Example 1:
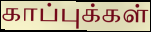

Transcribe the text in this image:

காப்புக்கள்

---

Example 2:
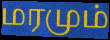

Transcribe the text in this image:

மரமும்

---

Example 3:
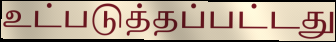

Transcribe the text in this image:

உட்படுத்தப்பட்டது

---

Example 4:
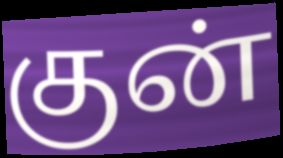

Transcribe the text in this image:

குன்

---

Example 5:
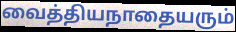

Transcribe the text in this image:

வைத்தியநாதையரும்